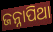
ଜନ୍ନାପିଥା